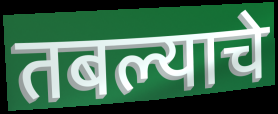
तबल्याचे